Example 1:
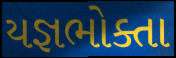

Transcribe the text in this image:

યજ્ઞભોક્તા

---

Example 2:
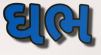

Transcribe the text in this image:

ઘભ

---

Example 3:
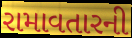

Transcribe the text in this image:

રામાવતારની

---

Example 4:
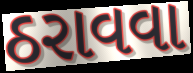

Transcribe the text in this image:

ઠરાવવા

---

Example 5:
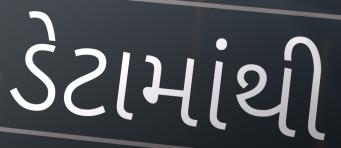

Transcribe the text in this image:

ડેટામાંથી